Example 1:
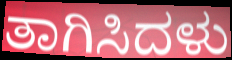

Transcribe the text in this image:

ತಾಗಿಸಿದಳು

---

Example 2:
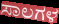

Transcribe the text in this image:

ಸಾಲಗಳ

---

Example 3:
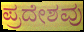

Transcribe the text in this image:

ಪ್ರದೇಶವು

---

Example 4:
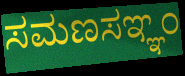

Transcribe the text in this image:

ಸಮಣಸಞ್ಞಂ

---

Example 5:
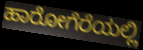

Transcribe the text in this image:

ಹಾರೋಗೆರೆಯಲ್ಲಿ